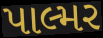
પાલ્મર